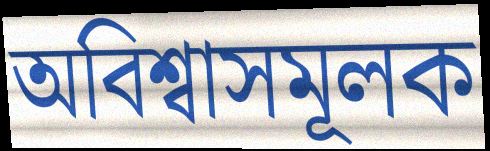
অবিশ্বাসমূলক